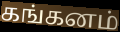
கங்கனம்